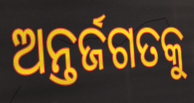
ଅନ୍ତର୍ଜଗତକୁ